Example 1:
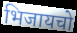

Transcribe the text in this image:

भिजायचो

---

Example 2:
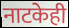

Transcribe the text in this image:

नाटकेही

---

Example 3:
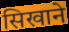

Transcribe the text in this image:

सिखाने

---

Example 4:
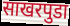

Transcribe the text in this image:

साखरपुडा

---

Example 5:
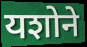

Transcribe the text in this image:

यशोने